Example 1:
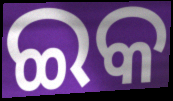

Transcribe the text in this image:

ଇକ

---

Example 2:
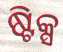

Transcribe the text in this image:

ଷ୍ଟିକ୍ସ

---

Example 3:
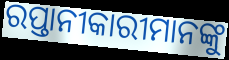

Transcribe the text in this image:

ରପ୍ତାନୀକାରୀମାନଙ୍କୁ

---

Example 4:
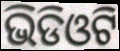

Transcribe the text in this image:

ଭିଡିଓଟି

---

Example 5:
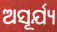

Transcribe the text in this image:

ଅସୂର୍ଯ୍ୟ